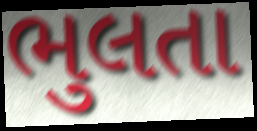
ભુલતા